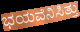
ಭಯವೆನಿಸಿತ್ತು